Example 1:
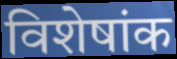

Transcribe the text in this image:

विशेषांक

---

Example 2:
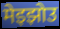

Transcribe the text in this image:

मेइझोउ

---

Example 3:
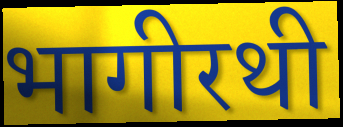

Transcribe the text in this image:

भागीरथी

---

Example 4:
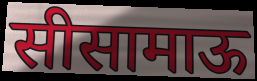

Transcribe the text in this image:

सीसामाऊ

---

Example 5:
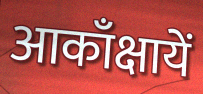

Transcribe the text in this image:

आकाँक्षायें